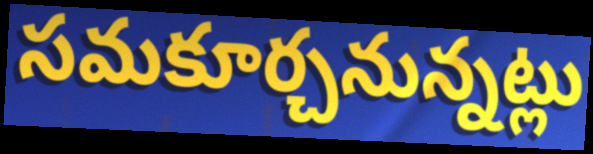
సమకూర్చనున్నట్లు